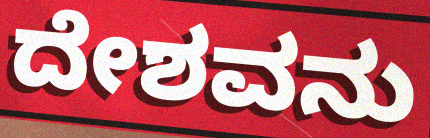
ದೇಶವನು